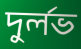
দুৰ্লভ